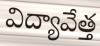
విద్యావేత్త